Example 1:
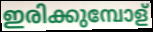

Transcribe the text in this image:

ഇരിക്കുമ്പോള്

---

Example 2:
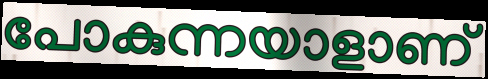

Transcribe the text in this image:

പോകുന്നയാളാണ്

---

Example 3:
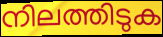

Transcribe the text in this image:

നിലത്തിടുക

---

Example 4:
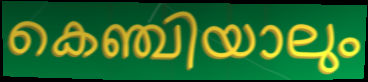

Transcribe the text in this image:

കെഞ്ചിയാലും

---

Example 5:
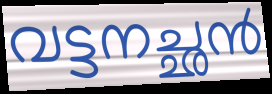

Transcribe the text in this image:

വട്ടനച്ഛൻ